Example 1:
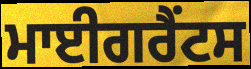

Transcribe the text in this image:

ਮਾਈਗਰੈਂਟਸ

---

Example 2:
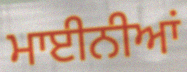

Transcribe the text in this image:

ਮਾਈਨੀਆਂ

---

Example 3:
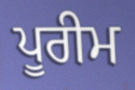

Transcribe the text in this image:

ਪੂਰੀਮ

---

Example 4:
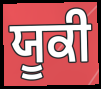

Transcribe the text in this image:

ਯੂਕੀ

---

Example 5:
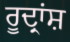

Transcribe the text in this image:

ਰੂਦ੍ਰਾਂਸ਼